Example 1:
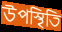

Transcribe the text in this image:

উপস্থিতি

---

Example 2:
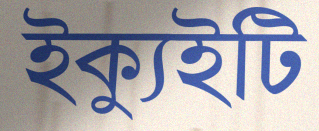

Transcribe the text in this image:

ইক্যুইটি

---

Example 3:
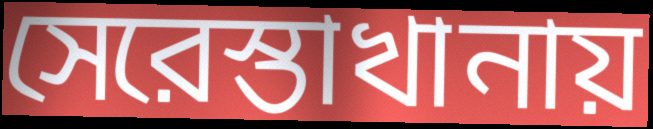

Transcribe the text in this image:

সেরেস্তাখানায়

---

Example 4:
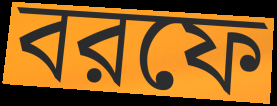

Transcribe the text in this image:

বরফে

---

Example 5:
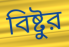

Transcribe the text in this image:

বিষ্টুর